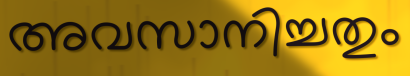
അവസാനിച്ചതും